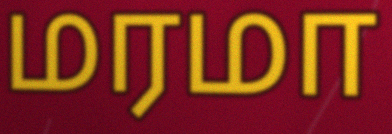
மரமா